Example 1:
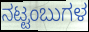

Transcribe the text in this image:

ನಟ್ಟಂಬುಗಳ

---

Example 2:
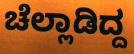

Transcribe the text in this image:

ಚೆಲ್ಲಾಡಿದ್ದ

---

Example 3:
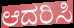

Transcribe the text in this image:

ಆದರಿಸಿ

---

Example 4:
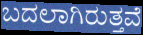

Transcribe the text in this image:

ಬದಲಾಗಿರುತ್ತವೆ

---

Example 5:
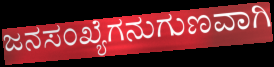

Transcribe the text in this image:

ಜನಸಂಖ್ಯೆಗನುಗುಣವಾಗಿ